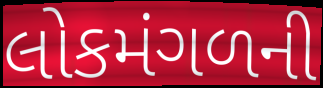
લોકમંગળની